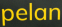
pelan